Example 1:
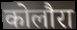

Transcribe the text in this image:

कोलौरा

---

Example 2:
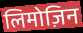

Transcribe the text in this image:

लिमोज़िन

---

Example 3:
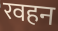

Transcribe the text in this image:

रवहन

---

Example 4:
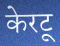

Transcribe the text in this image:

केरटू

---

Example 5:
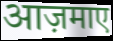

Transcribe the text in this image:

आज़माए